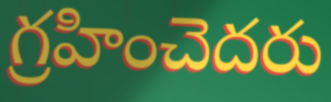
గ్రహించెదరు